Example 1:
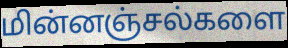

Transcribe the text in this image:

மின்னஞ்சல்களை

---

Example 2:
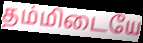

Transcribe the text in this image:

தம்மிடையே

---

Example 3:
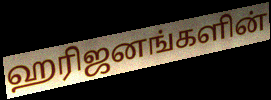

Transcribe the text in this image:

ஹரிஜனங்களின்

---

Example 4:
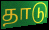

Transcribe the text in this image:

தாடு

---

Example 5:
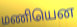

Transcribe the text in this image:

மணியென